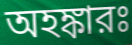
অহঙ্কারঃ